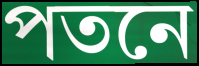
পতনে